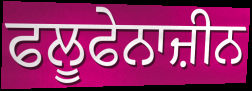
ਫਲੂਫੇਨਾਜ਼ੀਨ